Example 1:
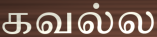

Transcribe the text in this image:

கவல்ல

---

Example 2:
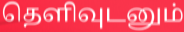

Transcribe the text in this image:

தெளிவுடனும்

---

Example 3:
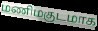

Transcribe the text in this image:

மணிமகுடமாக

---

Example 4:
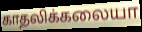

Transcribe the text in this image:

காதலிக்கலையா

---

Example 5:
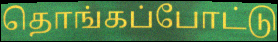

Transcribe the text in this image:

தொங்கப்போட்டு